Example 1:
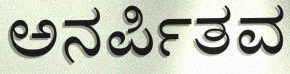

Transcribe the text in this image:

ಅನರ್ಪಿತವ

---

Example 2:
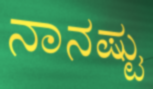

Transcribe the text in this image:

ನಾನಷ್ಟು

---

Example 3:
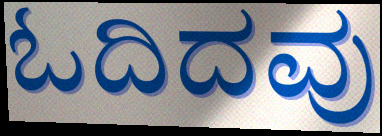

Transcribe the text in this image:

ಓದಿದವು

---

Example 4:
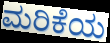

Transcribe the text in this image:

ಮರಿಕೆಯ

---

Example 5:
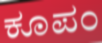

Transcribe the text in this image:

ಕೂಪಂ